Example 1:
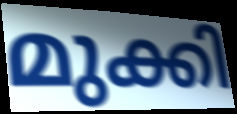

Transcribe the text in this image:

മുക്കി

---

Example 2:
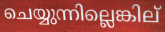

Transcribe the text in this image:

ചെയ്യുന്നില്ലെങ്കില്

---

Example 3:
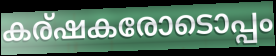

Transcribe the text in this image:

കര്ഷകരോടൊപ്പം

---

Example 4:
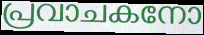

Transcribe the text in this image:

പ്രവാചകനോ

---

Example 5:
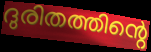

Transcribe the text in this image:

ദുരിതത്തിന്റെ